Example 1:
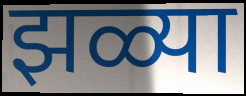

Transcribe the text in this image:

झळ्या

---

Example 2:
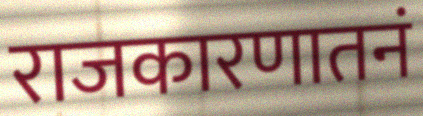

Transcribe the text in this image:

राजकारणातनं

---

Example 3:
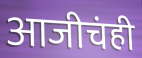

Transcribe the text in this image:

आजीचंही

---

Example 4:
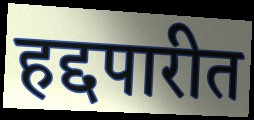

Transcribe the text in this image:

हद्दपारीत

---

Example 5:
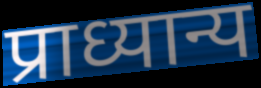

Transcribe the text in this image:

प्राध्यान्य